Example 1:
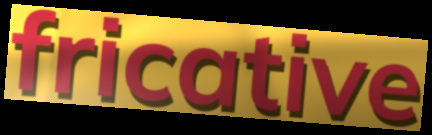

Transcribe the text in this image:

fricative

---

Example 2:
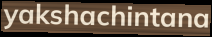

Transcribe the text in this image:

yakshachintana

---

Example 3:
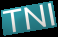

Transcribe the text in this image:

TNI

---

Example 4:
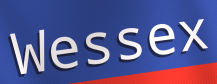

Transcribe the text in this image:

Wessex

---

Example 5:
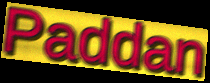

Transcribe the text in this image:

Paddan